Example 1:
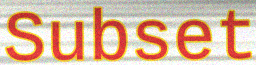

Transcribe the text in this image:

Subset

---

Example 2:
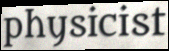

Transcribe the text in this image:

physicist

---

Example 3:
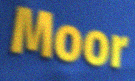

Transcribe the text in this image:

Moor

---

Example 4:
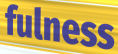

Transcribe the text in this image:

fulness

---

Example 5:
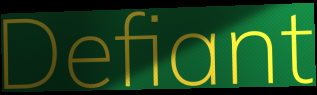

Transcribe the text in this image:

Defiant